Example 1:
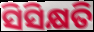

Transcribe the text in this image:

ସିସିକ୍ଷତି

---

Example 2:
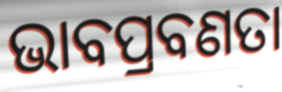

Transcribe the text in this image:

ଭାବପ୍ରବଣତା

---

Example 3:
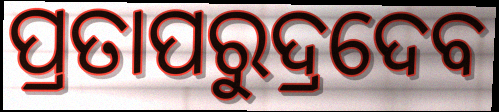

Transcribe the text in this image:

ପ୍ରତାପରୁଦ୍ରଦେବ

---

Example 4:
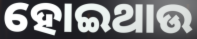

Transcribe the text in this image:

ହୋଇଥାଉ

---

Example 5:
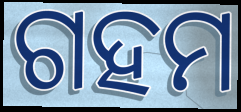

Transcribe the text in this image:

ଗହମ